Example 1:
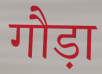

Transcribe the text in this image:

गौड़ा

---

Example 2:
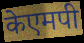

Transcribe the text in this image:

केएमपी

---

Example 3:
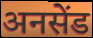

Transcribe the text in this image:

अनसेंड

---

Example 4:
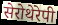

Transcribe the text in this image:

सेरोथेरेपी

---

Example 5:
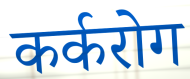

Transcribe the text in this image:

कर्करोग